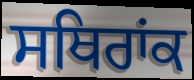
ਸਥਿਰਾਂਕ